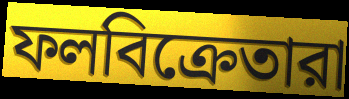
ফলবিক্রেতারা